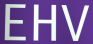
EHV